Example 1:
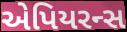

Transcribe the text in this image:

એપિયરન્સ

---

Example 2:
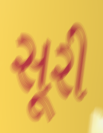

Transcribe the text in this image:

સૂરી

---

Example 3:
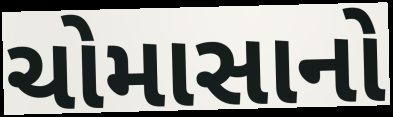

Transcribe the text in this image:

ચોમાસાનો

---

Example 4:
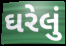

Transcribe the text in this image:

ઘરેલું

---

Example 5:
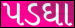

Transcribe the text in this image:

પડઘા